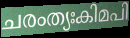
ചരംത്യഃകിമപി